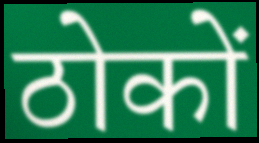
ठोकों